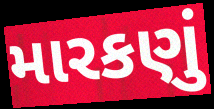
મારકણું